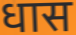
धास